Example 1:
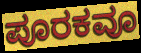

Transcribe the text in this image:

ಪೂರಕವೂ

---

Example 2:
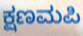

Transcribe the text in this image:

ಕ್ಷಣಮಪಿ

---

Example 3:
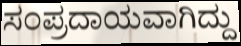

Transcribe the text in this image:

ಸಂಪ್ರದಾಯವಾಗಿದ್ದು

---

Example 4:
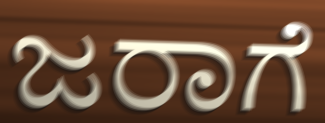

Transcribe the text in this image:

ಜರಾಗೆ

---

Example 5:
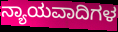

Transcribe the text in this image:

ನ್ಯಾಯವಾದಿಗಳ